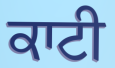
ਕਾਟੀ